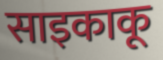
साइकाकू